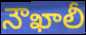
నౌఖాలీ